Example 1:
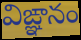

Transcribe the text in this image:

విఙ్ఞానం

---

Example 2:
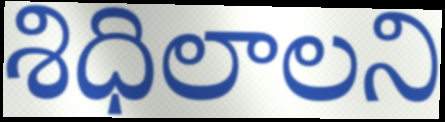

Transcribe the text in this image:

శిధిలాలని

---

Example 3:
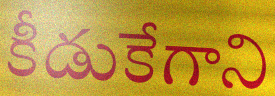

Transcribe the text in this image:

కీడుకేగాని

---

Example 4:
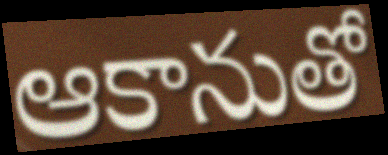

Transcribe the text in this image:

ఆకానుతో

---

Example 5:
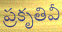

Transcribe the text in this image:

ప్రకృతివీ